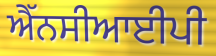
ਐੱਨਸੀਆਈਪੀ